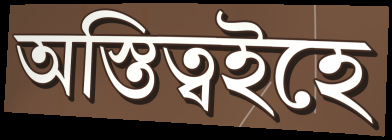
অস্তিত্বইহে